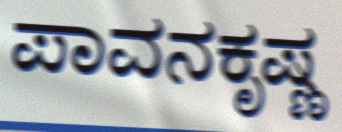
ಪಾವನಕೃಷ್ಣ